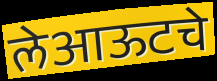
लेआऊटचे